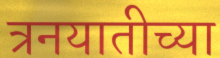
त्रनयातीच्या